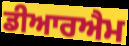
ਡੀਆਰਐਮ